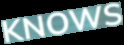
KNOWS